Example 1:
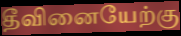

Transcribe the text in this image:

தீவினையேற்கு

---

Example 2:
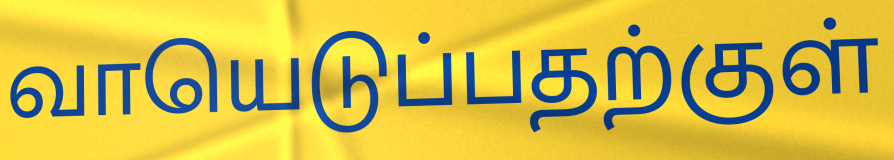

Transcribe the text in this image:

வாயெடுப்பதற்குள்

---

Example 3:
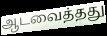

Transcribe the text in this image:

ஆடவைத்தது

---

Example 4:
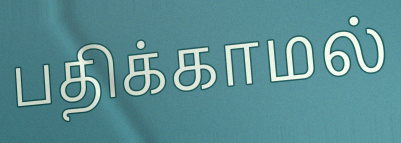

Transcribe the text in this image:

பதிக்காமல்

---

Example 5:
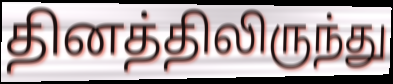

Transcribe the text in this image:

தினத்திலிருந்து